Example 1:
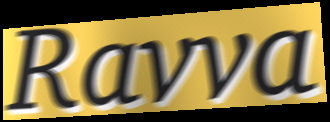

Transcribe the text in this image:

Ravva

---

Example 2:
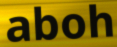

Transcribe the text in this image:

aboh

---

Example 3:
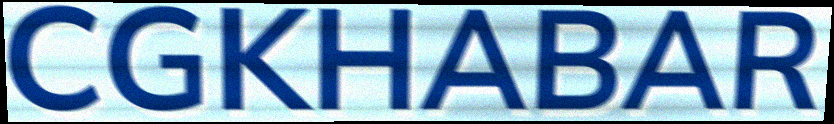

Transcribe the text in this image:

CGKHABAR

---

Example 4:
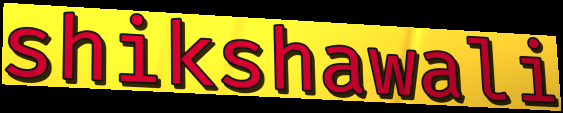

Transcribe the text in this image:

shikshawali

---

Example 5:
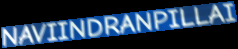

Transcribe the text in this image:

NAVIINDRANPILLAI